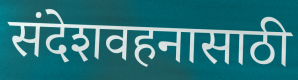
संदेशवहनासाठी